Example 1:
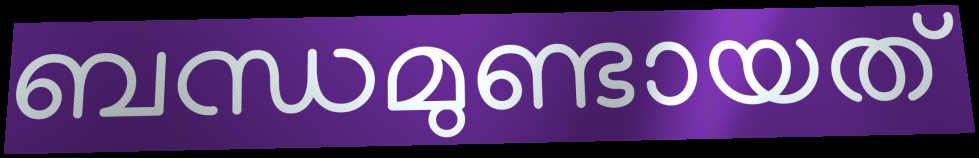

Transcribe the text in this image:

ബന്ധമുണ്ടായത്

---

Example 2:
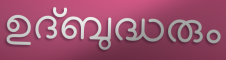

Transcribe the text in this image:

ഉദ്ബുദ്ധരും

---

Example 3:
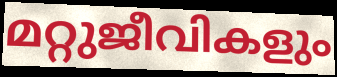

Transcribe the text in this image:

മറ്റുജീവികളും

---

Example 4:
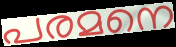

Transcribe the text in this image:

പരമനെ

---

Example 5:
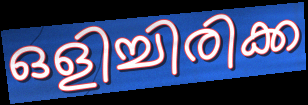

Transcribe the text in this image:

ഒളിച്ചിരിക്ക